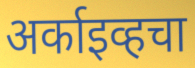
अर्काइव्हचा